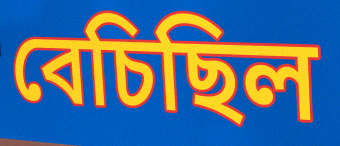
বেচিছিল